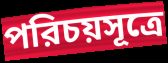
পরিচয়সূত্রে